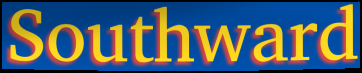
Southward